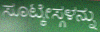
ಸೂಟ್ಕೇಸ್ಗಳನ್ನು